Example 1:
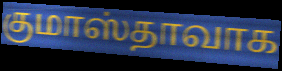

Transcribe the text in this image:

குமாஸ்தாவாக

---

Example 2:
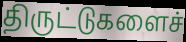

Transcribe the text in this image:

திருட்டுகளைச்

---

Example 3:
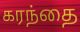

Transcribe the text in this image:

கரந்தை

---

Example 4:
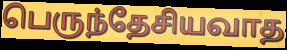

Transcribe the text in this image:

பெருந்தேசியவாத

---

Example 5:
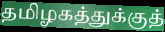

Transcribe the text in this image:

தமிழகத்துக்குத்